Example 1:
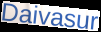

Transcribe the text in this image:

Daivasur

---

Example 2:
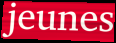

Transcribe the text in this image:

jeunes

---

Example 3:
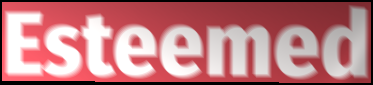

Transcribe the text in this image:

Esteemed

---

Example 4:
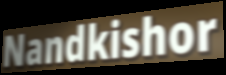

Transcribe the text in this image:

Nandkishor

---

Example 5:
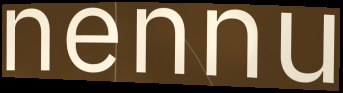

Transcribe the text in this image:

nennu